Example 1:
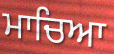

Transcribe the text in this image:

ਮਾਚਿਆ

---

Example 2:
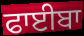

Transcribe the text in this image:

ਫਾਈਬਾ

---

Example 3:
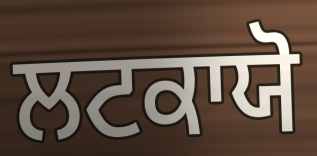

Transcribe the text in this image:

ਲਟਕਾਯੋ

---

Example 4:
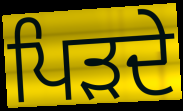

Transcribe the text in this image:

ਪਿੜਦੇ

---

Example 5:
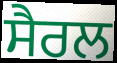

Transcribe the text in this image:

ਸੈਰਲ